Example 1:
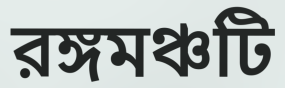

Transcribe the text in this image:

রঙ্গমঞ্চটি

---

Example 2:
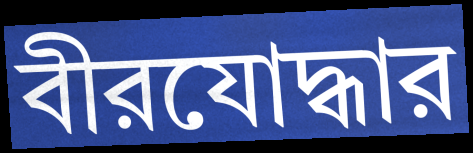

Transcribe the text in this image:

বীরযোদ্ধার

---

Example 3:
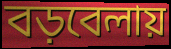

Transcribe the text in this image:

বড়বেলায়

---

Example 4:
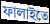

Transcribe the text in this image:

ফালাইতে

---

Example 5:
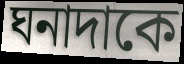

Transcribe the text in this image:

ঘনাদাকে